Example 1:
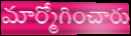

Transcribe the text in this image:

మార్మోగించారు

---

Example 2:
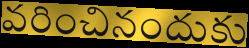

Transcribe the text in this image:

వరించినందుకు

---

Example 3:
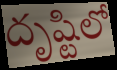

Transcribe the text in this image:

దృష్టిలో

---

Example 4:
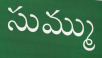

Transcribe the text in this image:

సుమ్ము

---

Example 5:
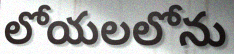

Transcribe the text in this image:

లోయలలోను